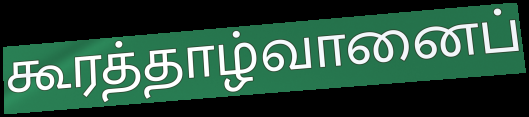
கூரத்தாழ்வானைப்